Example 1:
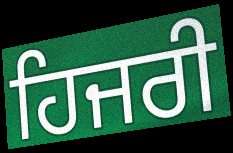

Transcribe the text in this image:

ਹਿਜਰੀ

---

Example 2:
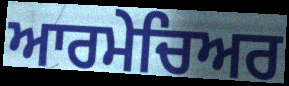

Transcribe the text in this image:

ਆਰਮੇਚਿਅਰ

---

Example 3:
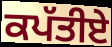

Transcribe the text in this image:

ਕਪੱਤੀਏ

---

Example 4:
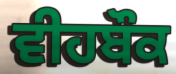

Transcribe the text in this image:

ਵੀਹਬੌਕ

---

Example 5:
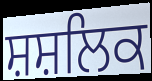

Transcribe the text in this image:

ਸ਼ਸ਼ਲਿਕ